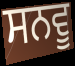
ਸਨਵੂ